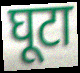
घूटा